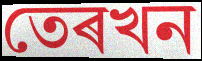
তেৰখন